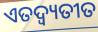
ଏତଦ୍ବ୍ୟତୀତ